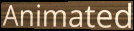
Animated